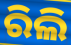
ରିଲି